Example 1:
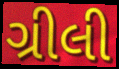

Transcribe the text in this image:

ગ્રીલી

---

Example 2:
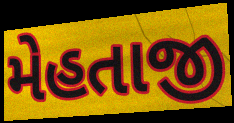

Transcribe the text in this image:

મેહતાજી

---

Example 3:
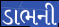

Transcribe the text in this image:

ડાભની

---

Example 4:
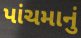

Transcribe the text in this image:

પાંચમાનું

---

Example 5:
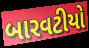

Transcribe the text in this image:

બારવટીયો